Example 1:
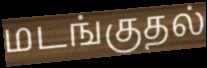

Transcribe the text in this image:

மடங்குதல்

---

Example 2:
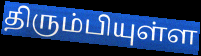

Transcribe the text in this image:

திரும்பியுள்ள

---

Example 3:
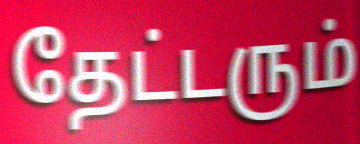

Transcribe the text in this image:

தேட்டரும்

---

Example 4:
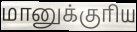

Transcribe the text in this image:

மானுக்குரிய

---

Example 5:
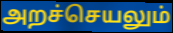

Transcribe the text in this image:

அறச்செயலும்